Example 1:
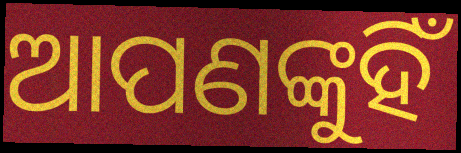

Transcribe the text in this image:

ଆପଣଙ୍କୁହିଁ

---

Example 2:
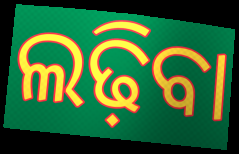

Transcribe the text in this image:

ଲଢ଼ିବା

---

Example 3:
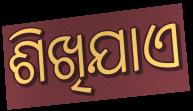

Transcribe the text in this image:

ଶିଖିଯାଏ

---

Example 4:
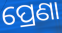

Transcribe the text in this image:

ପ୍ରେଣା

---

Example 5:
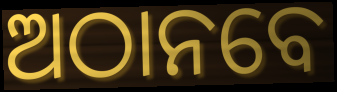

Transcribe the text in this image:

ଅଠାନବେ